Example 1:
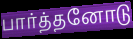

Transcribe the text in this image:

பார்த்தனோடு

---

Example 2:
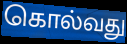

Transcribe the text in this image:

கொல்வது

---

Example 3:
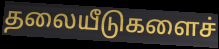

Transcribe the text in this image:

தலையீடுகளைச்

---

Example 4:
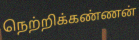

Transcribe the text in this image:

நெற்றிக்கண்ணன்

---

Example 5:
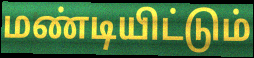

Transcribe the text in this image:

மண்டியிட்டும்